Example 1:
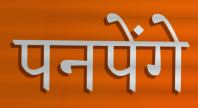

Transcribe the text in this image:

पनपेंगे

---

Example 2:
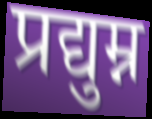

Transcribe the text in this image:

प्रद्युम्न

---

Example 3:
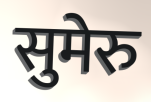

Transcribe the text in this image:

सुमेरु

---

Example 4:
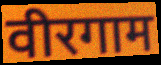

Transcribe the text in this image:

वीरगाम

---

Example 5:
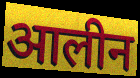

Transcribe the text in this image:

आलीन